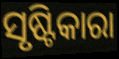
ସୃଷ୍ଟିକାରା